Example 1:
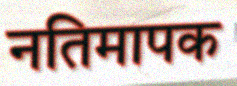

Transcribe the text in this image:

नतिमापक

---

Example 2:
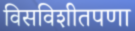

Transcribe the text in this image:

विसविशीतपणा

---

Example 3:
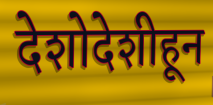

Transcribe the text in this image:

देशोदेशीहून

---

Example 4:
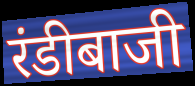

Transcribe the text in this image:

रंडीबाजी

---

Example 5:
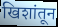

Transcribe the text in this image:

खिशांतून